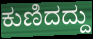
ಕುಣಿದದ್ದು